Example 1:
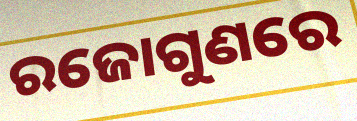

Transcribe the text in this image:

ରଜୋଗୁଣରେ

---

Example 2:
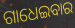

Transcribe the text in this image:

ଗାଧେଇବାର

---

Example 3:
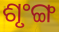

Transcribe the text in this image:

ଶୃଂଙ୍ଗ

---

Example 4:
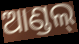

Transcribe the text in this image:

ଆଣ୍ଡଲ୍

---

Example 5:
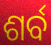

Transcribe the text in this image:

ଶର୍ବ